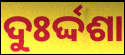
ଦୁଃର୍ଦ୍ଦଶା